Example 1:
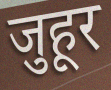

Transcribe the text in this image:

जुहूर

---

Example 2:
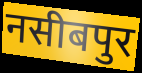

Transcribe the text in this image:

नसीबपुर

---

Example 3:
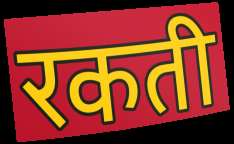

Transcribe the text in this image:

रकती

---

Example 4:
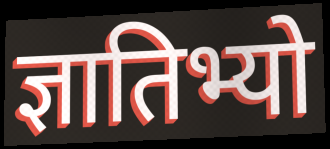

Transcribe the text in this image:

ज्ञातिभ्यो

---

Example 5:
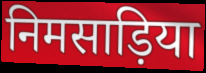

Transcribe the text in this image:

निमसाड़िया